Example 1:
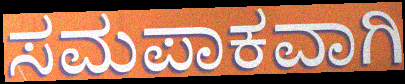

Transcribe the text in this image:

ಸಮಪಾಕವಾಗಿ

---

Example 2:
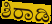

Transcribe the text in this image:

ಶಿರಾಡಿ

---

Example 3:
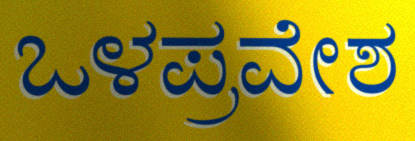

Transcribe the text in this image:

ಒಳಪ್ರವೇಶ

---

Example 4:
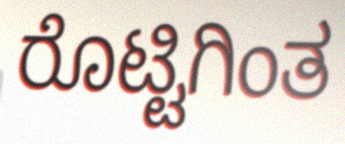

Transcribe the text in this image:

ರೊಟ್ಟಿಗಿಂತ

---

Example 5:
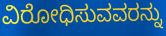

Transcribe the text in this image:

ವಿರೋಧಿಸುವವರನ್ನು